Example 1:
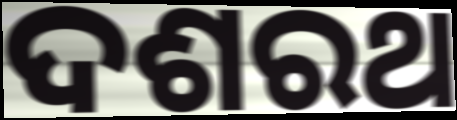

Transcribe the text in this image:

ଦଶରଥ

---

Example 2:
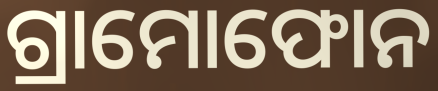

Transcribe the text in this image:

ଗ୍ରାମୋଫୋନ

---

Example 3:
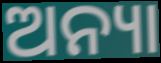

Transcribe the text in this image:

ଅନ୍ୟା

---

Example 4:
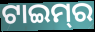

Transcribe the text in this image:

ଟାଇମ୍‌ର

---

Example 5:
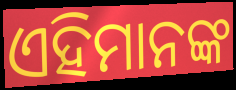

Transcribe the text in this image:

ଏହିମାନଙ୍କ